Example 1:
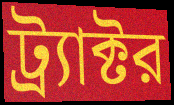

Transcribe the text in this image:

ট্র্যাক্টর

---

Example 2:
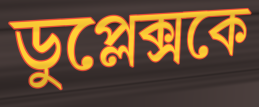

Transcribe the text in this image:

ডুপ্লেক্সকে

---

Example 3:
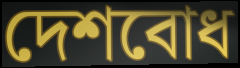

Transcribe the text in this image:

দেশবোধ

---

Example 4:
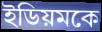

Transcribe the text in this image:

ইডিয়মকে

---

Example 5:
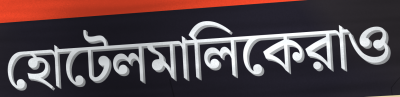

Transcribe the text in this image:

হোটেলমালিকেরাও